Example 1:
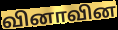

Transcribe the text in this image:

வினாவின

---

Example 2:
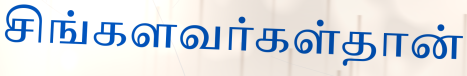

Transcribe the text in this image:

சிங்களவர்கள்தான்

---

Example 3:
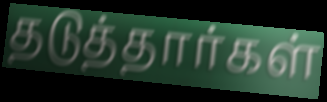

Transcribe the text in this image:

தடுத்தார்கள்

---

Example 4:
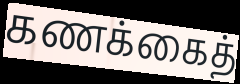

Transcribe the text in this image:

கணக்கைத்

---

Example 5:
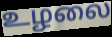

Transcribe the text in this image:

உழலை